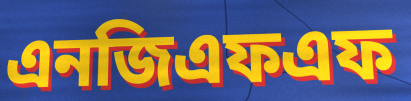
এনজিএফএফ